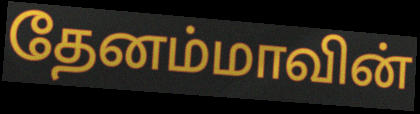
தேனம்மாவின்